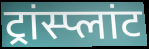
ट्रांस्प्लांट